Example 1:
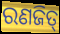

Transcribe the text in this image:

ରଣଜିତ୍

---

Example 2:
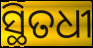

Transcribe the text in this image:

ସ୍ଥିତଧୀ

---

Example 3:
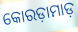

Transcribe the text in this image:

କୋରଡ଼ାମାଡ଼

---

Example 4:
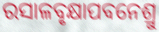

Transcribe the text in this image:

ରସାଳବୃକ୍ଷାପବନେଶ୍ରୁ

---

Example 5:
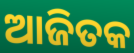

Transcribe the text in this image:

ଆଜିତକ